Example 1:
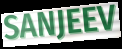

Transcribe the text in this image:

SANJEEV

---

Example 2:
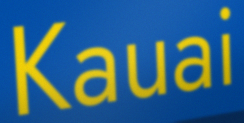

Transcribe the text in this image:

Kauai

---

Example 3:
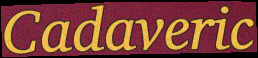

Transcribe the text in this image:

Cadaveric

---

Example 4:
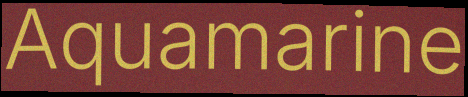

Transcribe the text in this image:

Aquamarine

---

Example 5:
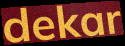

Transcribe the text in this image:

dekar